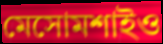
মেসোমশাইও